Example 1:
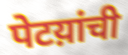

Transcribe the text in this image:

पेटय़ांची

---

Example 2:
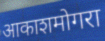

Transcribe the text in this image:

आकाशमोगरा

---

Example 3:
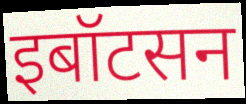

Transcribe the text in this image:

इबॉटसन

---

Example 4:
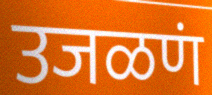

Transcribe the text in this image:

उजळणं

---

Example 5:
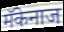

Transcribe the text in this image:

मॅकेनाज